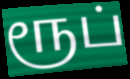
ரூப்